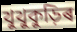
থুথুকুড়িৰ